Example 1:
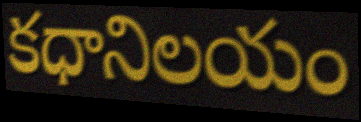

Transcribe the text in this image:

కధానిలయం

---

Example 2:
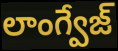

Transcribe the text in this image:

లాంగ్వేజ్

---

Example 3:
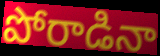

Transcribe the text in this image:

పోరాడినా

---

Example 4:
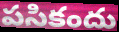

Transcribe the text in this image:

పసికందు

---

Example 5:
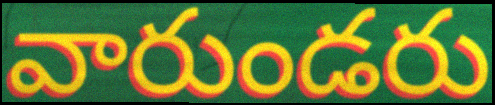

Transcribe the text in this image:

వారుండరు